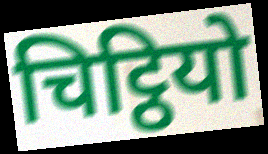
चिट्ठियो